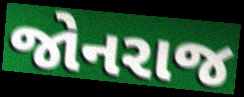
જોનરાજ